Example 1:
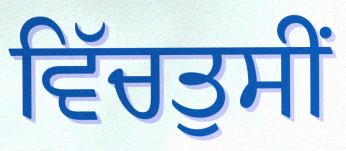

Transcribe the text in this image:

ਵਿੱਚਤੁਸੀਂ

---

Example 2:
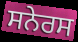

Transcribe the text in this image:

ਸਨੇਰਸ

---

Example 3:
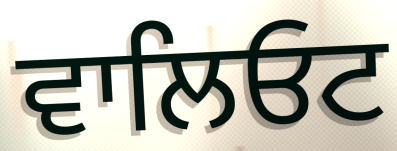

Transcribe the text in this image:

ਵਾਲਿਓਟ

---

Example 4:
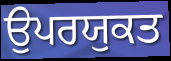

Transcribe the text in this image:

ਉਪਰਯੁਕਤ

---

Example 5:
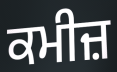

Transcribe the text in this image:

ਕਮੀਜ਼